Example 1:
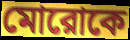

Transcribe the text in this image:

মোরোকে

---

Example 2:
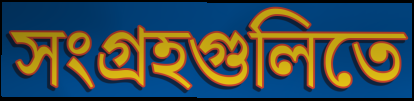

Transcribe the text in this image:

সংগ্রহগুলিতে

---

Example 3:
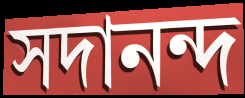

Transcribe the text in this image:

সদানন্দ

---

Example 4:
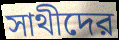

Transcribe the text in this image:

সাথীদের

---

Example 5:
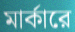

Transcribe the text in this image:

মার্কারে